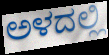
ಅಳದಲ್ಲಿ